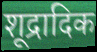
शूद्रादिक